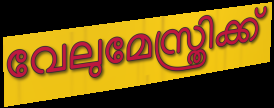
വേലുമേസ്ത്രിക്ക്